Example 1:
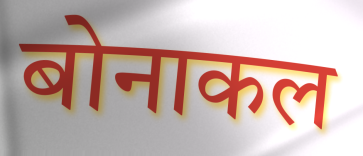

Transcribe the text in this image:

बोनाकल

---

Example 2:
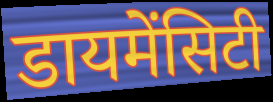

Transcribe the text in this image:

डायमेंसिटी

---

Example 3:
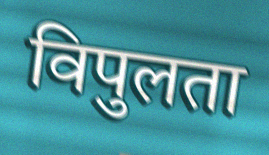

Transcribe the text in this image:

विपुलता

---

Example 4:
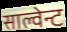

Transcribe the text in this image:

साल्वेन्ट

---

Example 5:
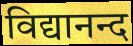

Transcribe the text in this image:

विद्यानन्द